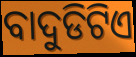
ବାଦୁଡିଟିଏ